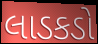
લાડકડો